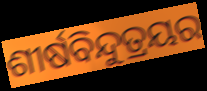
ଶୀର୍ଷବିନ୍ଦୁତ୍ରୟର